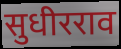
सुधीरराव